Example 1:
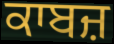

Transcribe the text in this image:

ਕਾਬਜ਼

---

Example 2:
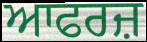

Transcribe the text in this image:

ਆਫਰਜ਼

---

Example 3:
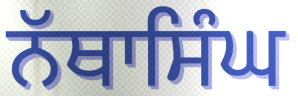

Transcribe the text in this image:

ਨੱਥਾਸਿੰਘ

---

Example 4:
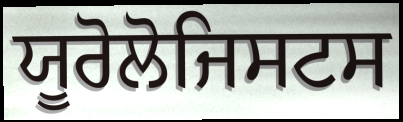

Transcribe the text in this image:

ਯੂਰੋਲੋਜਿਸਟਸ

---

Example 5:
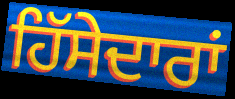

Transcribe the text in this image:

ਹਿੱਸੇਦਾਰਾਂ